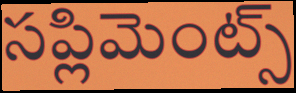
సప్లిమెంట్స్